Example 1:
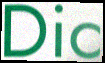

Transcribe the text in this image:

Dic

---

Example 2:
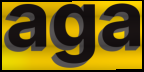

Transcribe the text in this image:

aga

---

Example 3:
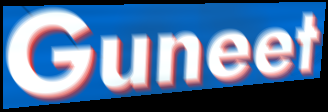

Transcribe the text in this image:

Guneet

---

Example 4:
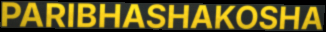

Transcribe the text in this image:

PARIBHASHAKOSHA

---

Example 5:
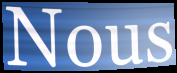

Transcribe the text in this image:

Nous